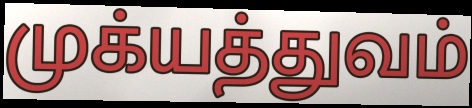
முக்யத்துவம்